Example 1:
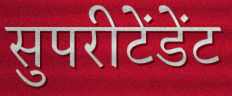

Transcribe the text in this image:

सुपरीटेंडेंट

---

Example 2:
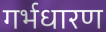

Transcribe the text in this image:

गर्भधारण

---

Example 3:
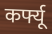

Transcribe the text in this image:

कर्फ्यू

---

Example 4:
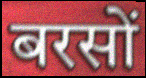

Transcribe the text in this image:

बरसों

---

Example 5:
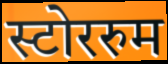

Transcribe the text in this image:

स्टोररुम